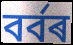
বৰ্বৰ